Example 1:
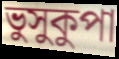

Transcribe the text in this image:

ভুসুকুপা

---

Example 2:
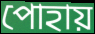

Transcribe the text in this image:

পোহায়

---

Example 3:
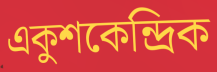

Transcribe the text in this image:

একুশকেন্দ্রিক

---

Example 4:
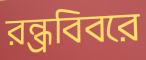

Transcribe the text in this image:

রন্ধ্রবিবরে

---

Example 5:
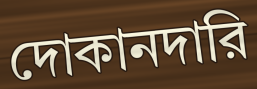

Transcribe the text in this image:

দোকানদারি